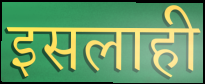
इसलाही